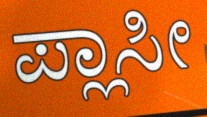
ಪ್ಲಾಸೀ